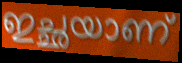
ഇച്ഛയാണ്